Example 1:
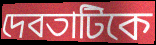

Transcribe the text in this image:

দেবতাটিকে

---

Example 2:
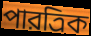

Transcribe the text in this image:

পারত্রিক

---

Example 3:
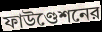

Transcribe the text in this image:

ফাউণ্ডেশনের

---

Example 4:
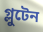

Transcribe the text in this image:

গ্লুটেন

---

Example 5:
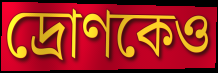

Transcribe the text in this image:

দ্রোণকেও